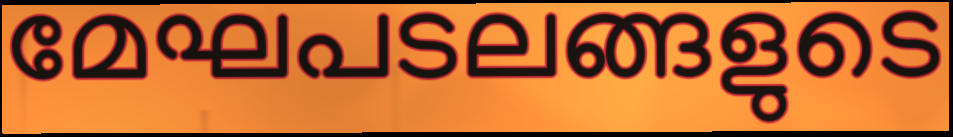
മേഘപടലങ്ങളുടെ